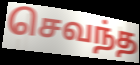
செவந்த